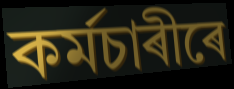
কৰ্মচাৰীৰে